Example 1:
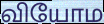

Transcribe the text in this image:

வியோம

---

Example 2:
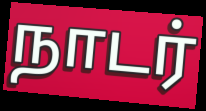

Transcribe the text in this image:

நாடர்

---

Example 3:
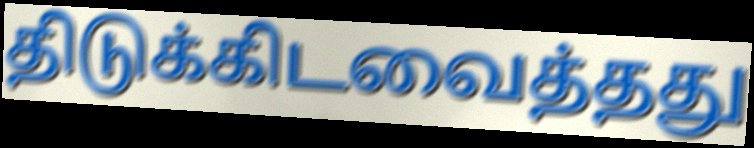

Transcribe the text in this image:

திடுக்கிடவைத்தது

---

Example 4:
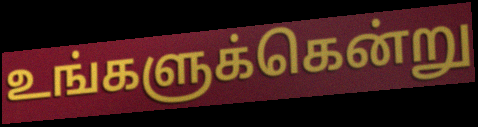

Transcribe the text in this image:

உங்களுக்கென்று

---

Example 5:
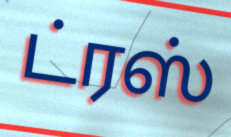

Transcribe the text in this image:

ட்ரஸ்